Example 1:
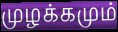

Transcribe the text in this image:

முழக்கமும்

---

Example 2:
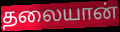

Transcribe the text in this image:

தலையான்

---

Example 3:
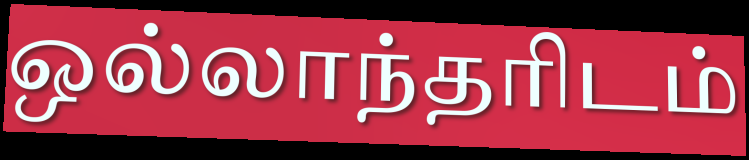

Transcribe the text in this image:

ஒல்லாந்தரிடம்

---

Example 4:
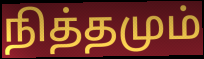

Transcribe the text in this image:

நித்தமும்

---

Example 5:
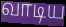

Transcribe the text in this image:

வாடிய